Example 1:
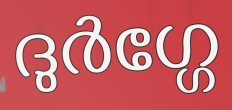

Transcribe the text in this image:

ദുർഗ്ഗേ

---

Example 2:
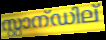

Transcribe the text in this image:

സ്റ്റാന്ഡില്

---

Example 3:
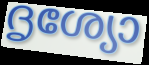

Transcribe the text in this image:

ദൃശ്യോ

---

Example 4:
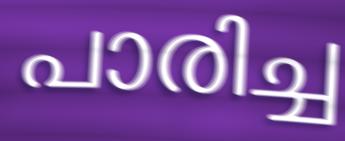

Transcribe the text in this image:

പാരിച്ച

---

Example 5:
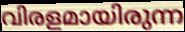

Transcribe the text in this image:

വിരളമായിരുന്ന